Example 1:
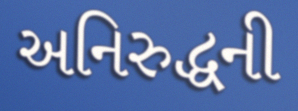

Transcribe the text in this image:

અનિરુદ્ધની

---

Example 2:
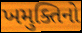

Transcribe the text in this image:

ખમુક્તિનો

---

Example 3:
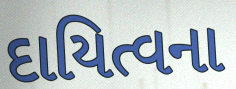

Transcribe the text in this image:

દાયિત્વના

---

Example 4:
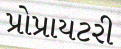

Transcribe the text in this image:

પ્રોપ્રાયટરી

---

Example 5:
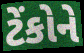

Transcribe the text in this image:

ટેંકોને